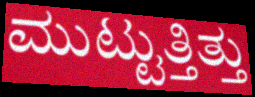
ಮುಟ್ಟುತ್ತಿತ್ತು